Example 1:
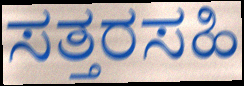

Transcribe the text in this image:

ಸತ್ತರಸಹಿ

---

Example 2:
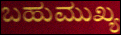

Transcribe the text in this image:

ಬಹುಮುಖ್ಯ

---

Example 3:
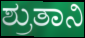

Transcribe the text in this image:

ಶ್ರುತಾನಿ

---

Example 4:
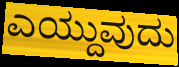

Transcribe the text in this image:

ಎಯ್ದುವುದು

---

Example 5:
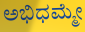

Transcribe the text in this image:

ಅಭಿಧಮ್ಮೇ